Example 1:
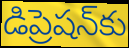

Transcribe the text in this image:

డిప్రెషన్‌కు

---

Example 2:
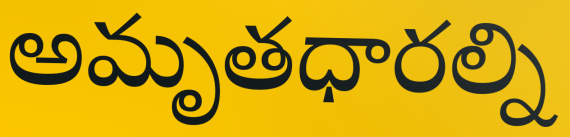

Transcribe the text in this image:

అమృతధారల్ని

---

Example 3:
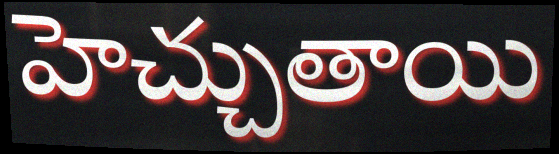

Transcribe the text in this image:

హెచ్చుతాయి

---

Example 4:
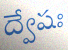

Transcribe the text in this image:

ద్వేషః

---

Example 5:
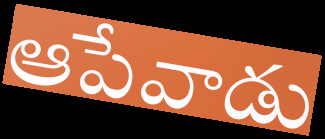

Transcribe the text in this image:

ఆపేవాడు